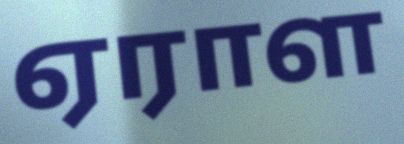
ஏராள